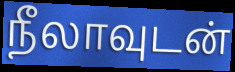
நீலாவுடன்